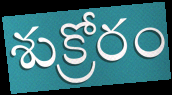
శుక్రోరం